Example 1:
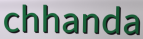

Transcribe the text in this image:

chhanda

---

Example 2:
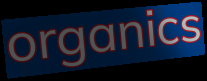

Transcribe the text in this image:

organics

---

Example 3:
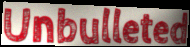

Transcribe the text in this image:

Unbulleted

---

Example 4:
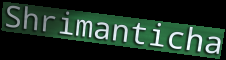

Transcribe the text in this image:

Shrimanticha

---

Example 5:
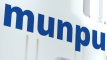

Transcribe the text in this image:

munpu